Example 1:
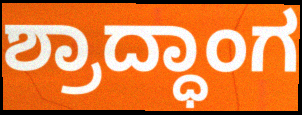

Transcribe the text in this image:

ಶ್ರಾದ್ಧಾಂಗ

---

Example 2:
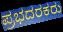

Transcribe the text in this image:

ಪ್ರಭದರಕರು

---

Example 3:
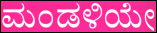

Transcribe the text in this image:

ಮಂಡಳಿಯೇ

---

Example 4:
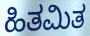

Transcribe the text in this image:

ಹಿತಮಿತ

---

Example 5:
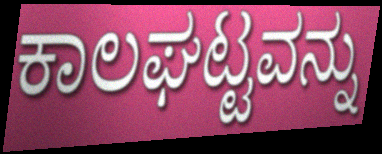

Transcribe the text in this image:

ಕಾಲಘಟ್ಟವನ್ನು